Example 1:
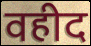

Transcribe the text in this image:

वहीद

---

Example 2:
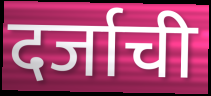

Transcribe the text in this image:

दर्जाची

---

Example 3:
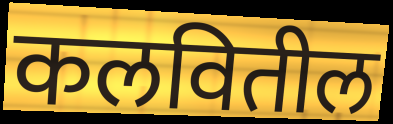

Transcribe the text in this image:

कलवितील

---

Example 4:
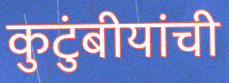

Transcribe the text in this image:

कुटुंबीयांची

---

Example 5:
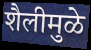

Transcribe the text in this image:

शैलीमुळे